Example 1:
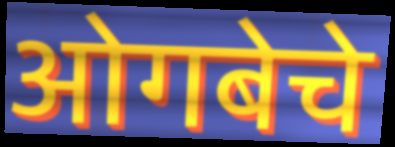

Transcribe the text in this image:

ओगबेचे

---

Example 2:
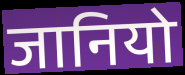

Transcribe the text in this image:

जानियो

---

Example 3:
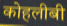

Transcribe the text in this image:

कोहलीबी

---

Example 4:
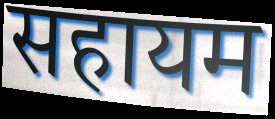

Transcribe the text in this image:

सहायम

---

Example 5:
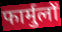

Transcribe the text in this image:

फार्मुलों